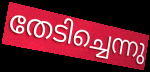
തേടിച്ചെന്നു